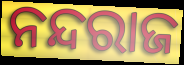
ନନ୍ଦରାଜ